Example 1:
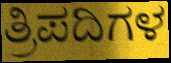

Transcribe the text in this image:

ತ್ರಿಪದಿಗಳ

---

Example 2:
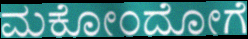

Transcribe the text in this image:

ಮಕೋಂದೋಗೆ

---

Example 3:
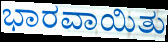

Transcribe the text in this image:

ಭಾರವಾಯಿತು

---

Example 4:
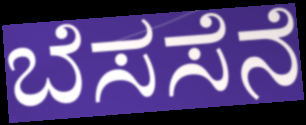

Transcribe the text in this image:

ಬೆಸಸೆನೆ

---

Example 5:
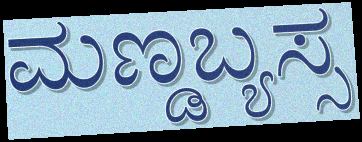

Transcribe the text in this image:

ಮಣ್ಡಬ್ಯಸ್ಸ